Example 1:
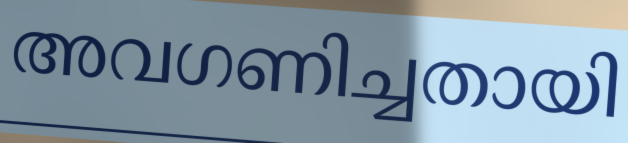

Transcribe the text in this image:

അവഗണിച്ചതായി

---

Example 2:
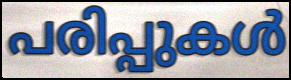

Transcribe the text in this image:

പരിപ്പുകൾ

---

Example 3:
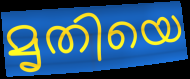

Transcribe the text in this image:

മൃതിയെ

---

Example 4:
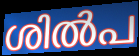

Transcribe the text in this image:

ശിൽപ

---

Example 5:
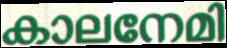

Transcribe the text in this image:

കാലനേമി